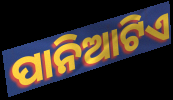
ପାନିଆଟିଏ